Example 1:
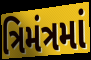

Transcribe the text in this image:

ત્રિમંત્રમાં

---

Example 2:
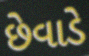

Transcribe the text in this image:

છેવાડે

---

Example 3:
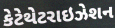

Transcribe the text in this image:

કેટેથેટરાઇઝેશન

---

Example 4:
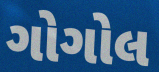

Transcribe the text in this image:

ગોગોલ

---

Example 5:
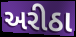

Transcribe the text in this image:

અરીઠા